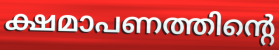
ക്ഷമാപണത്തിന്റെ